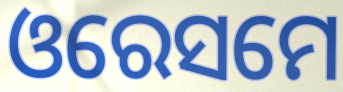
ଓରେସମେ